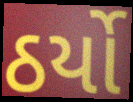
ઠર્યો